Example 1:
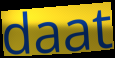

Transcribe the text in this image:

daat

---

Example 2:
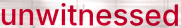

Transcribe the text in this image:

unwitnessed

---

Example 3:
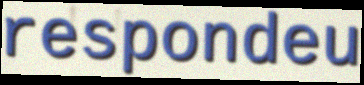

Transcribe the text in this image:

respondeu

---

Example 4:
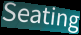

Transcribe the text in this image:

Seating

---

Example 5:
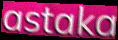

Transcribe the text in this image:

astaka